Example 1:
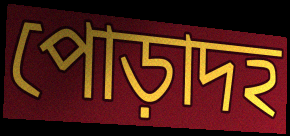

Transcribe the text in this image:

পোড়াদহ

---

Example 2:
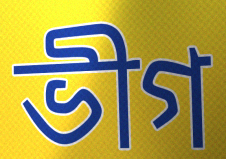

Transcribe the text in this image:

ভীগ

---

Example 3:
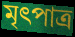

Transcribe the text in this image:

মৃৎপাত্র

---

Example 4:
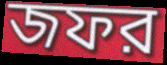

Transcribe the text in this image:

জফর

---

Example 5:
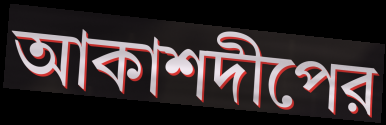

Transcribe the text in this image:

আকাশদীপের